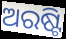
ଅରଷ୍ଟି